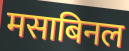
मसाबिनल